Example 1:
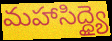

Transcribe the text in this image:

మహాసిద్ధ్యై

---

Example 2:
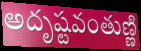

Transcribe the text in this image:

అదృష్టవంతుణ్ణి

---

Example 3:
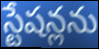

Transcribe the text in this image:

స్టేషన్లను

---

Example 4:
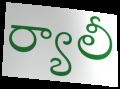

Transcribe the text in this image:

ర్యాలీ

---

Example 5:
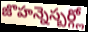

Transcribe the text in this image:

జొహన్నెస్బర్గ్లో